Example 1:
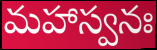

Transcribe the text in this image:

మహాస్వనః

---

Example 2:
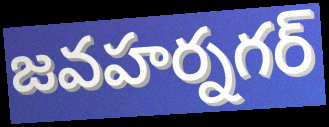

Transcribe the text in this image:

జవహర్నగర్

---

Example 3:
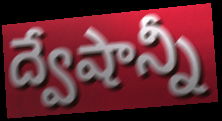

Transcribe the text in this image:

ద్వేషాన్నీ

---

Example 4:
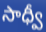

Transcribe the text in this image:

సాధ్వీ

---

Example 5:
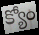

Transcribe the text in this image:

క్యోం